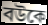
বউকে